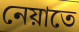
নেয়াতে